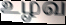
உழவ